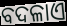
ବଦଳାଏ